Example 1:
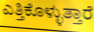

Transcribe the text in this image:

ಎತ್ತಿಕೊಳ್ಳುತ್ತಾರೆ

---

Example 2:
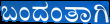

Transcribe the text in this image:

ಬಂದಂತಾಗಿ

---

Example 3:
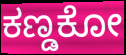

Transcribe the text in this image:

ಕಣ್ಡಕೋ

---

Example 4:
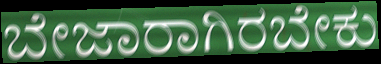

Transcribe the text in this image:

ಬೇಜಾರಾಗಿರಬೇಕು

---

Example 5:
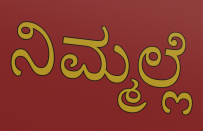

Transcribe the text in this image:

ನಿಮ್ಮಲ್ಲೆ